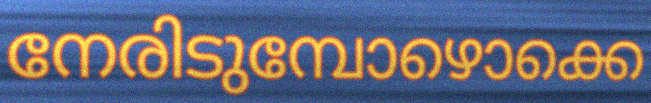
നേരിടുമ്പോഴൊക്കെ